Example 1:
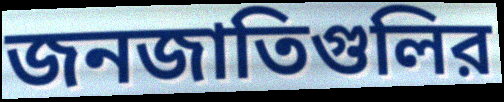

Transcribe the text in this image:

জনজাতিগুলির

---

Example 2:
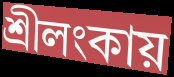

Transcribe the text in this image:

শ্রীলংকায়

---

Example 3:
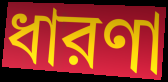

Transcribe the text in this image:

ধারণা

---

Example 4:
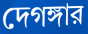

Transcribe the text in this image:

দেগঙ্গার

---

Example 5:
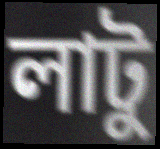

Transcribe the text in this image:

লাটু